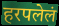
हरपलेलं